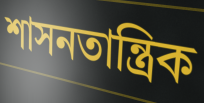
শাসনতান্ত্রিক